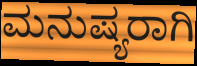
ಮನುಷ್ಯರಾಗಿ